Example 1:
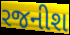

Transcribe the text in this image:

રજનીશ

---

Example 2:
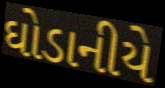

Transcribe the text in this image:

ઘોડાનીયે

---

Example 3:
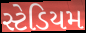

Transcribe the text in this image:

સ્ટેડિયમ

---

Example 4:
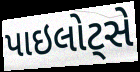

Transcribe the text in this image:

પાઇલોટ્સે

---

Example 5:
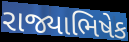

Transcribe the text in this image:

રાજ્યાભિષેક